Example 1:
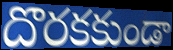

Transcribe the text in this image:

దొరకకుండా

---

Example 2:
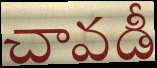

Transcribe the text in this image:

చావడీ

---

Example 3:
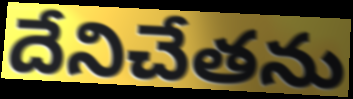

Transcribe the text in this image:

దేనిచేతను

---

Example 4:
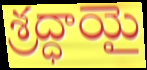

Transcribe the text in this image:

శ్రద్ధాయై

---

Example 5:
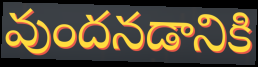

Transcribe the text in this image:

వుందనడానికి